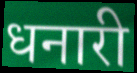
धनारी